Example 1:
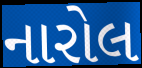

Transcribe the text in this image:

નારોલ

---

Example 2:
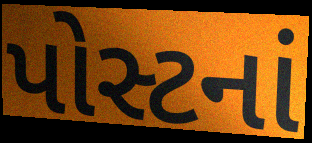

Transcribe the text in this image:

પોસ્ટનાં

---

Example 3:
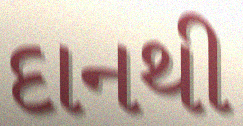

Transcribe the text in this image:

દાનથી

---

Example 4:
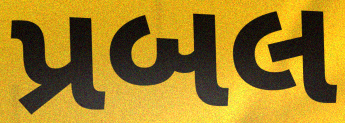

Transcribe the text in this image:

પ્રબલ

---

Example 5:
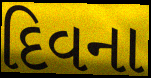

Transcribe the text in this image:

દિવના